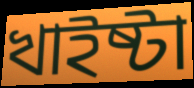
খাইষ্টা